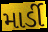
માર્ડી